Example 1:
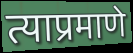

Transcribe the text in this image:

त्याप्रमाणे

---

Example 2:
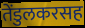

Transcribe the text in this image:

तेंडुलकरसह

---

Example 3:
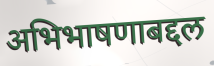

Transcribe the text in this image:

अभिभाषणाबद्दल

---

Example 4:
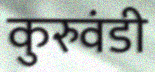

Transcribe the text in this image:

कुरुवंडी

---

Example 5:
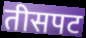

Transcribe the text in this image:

तीसपट